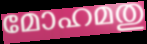
മോഹമതു